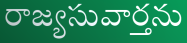
రాజ్యసువార్తను